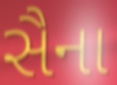
સૈના